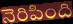
నెరిపింది